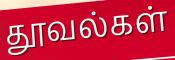
தூவல்கள்